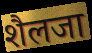
शैलजा